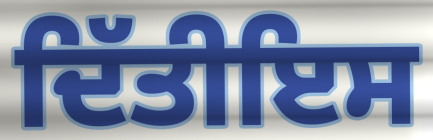
ਦਿੱਤੀਇਸ